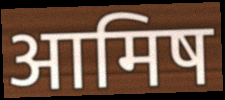
आमिष